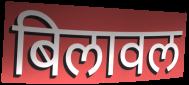
बिलावल